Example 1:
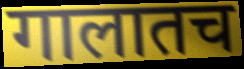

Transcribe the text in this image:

गालातच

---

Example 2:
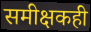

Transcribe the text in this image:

समीक्षकही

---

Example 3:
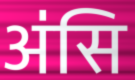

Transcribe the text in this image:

अ॑सि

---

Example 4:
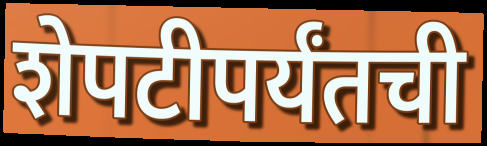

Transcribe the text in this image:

शेपटीपर्यंतची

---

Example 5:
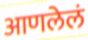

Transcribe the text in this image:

आणलेलं